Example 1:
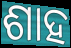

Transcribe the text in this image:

ଶାହ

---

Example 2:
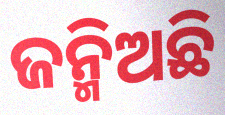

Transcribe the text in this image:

ଜନ୍ମିଅଛି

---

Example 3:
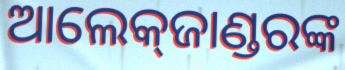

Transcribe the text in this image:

ଆଲେକ୍‍ଜାଣ୍ଡରଙ୍କ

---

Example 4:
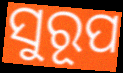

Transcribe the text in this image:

ସୁରୂପ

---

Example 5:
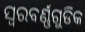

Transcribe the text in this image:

ସ୍ୱରବର୍ଣ୍ଣଗୁଡିକ